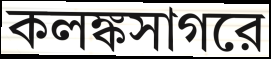
কলঙ্কসাগরে